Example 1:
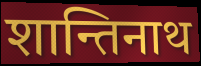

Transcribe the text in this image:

शान्तिनाथ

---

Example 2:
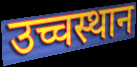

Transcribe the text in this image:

उच्चस्थान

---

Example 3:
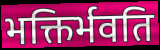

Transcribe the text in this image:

भक्तिर्भवति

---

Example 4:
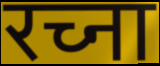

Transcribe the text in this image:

रच्ना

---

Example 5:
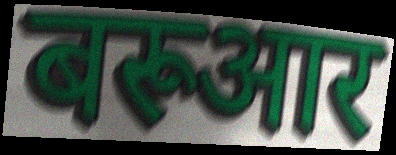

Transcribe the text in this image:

बरूआर